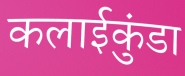
कलाईकुंडा